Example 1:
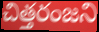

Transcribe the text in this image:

చిత్తరంజని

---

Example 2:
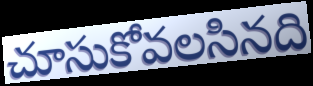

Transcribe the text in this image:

చూసుకోవలసినది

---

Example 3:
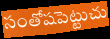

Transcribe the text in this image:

సంతోషపెట్టుచు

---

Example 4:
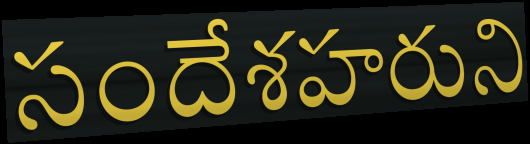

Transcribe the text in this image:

సందేశహరుని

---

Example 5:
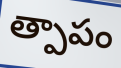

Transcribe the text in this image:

త్పాపం